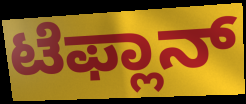
ಟೆಫ್ಲಾನ್